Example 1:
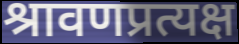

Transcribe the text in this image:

श्रावणप्रत्यक्ष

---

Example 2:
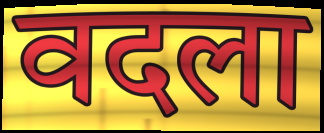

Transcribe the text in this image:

वदला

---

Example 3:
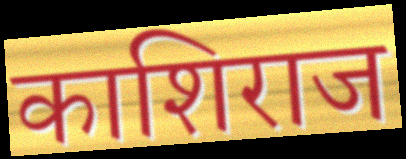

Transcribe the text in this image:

काशिराज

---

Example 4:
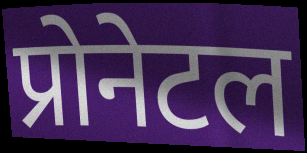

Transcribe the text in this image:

प्रोनेटल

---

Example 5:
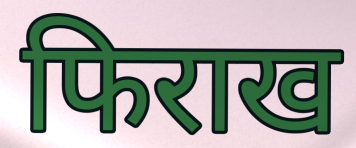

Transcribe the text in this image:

फिराख